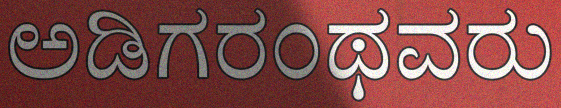
ಅಡಿಗರಂಥವರು